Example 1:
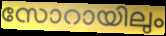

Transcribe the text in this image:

സോറായിലും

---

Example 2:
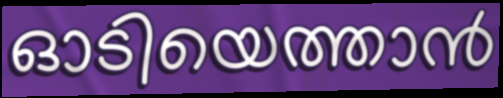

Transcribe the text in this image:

ഓടിയെത്താൻ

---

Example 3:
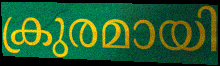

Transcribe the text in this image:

ക്രുരമായി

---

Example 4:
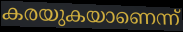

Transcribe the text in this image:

കരയുകയാണെന്ന്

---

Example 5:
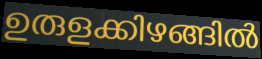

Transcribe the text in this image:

ഉരുളക്കിഴങ്ങിൽ